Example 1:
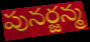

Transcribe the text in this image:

పునర్జన్మ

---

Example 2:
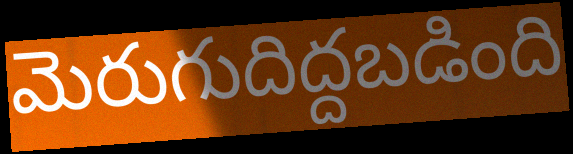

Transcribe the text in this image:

మెరుగుదిద్దబడింది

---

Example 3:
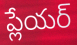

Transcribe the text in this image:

ప్లేయర్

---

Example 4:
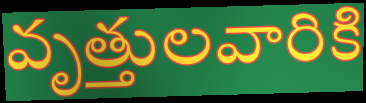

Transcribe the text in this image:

వృత్తులవారికి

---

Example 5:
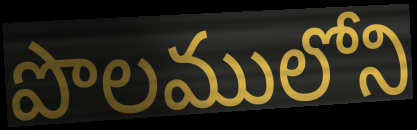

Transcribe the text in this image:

పొలములోని